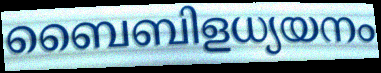
ബൈബിളധ്യയനം